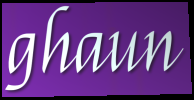
ghaun